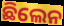
ଛିଲେନ